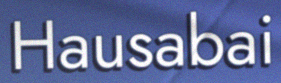
Hausabai